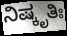
ನಿಷ್ಕೃತಿಃ